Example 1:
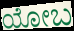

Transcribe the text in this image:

ಯೋಬ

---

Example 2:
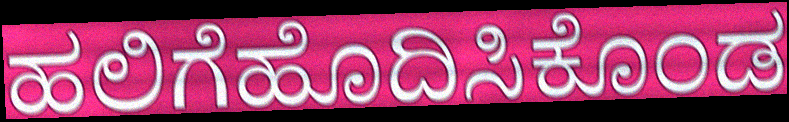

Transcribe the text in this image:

ಹಲಿಗೆಹೊದಿಸಿಕೊಂಡ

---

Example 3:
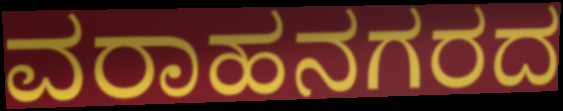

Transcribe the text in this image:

ವರಾಹನಗರದ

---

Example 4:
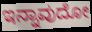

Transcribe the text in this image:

ಇನ್ನಾವುದೋ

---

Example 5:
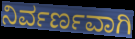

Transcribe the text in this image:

ನಿರ್ವರ್ಣವಾಗಿ